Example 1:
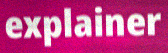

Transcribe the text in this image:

explainer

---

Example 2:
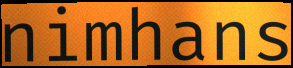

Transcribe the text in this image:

nimhans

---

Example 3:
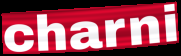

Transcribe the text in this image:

charni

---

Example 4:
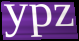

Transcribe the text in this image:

ypz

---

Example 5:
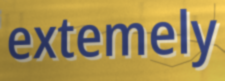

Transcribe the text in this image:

extemely